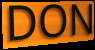
DON